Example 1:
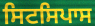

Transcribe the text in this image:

ਸਿਟਸਿਪਾਸ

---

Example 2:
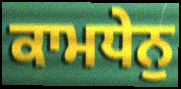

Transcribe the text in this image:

ਕਾਮਧੇਨੁ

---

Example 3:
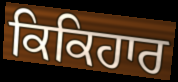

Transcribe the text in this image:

ਕਿਕਿਹਾਰ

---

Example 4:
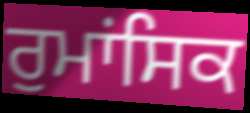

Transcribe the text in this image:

ਰੁਮਾਂਸਿਕ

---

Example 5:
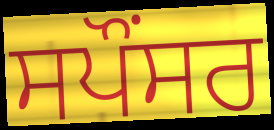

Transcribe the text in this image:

ਸਪੌਂਸਰ